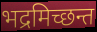
भद्रमिच्छन्त